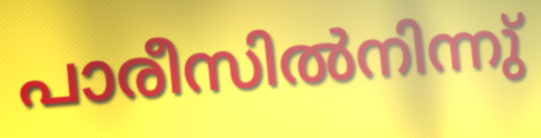
പാരീസിൽനിന്നു്